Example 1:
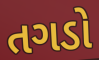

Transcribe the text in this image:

તગડો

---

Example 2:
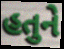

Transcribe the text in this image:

હતુને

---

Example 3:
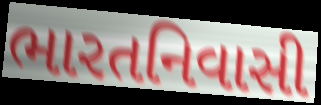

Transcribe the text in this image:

ભારતનિવાસી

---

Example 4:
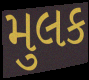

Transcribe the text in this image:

મુલક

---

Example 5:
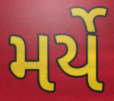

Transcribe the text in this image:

મર્યે